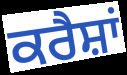
ਕਰੈਸ਼ਾਂ